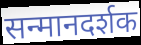
सन्मानदर्शक